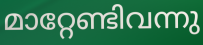
മാറ്റേണ്ടിവന്നു